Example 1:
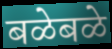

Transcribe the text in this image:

बळेबळे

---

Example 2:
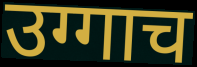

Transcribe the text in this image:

उग्गाच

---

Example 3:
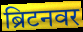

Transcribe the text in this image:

ब्रिटनवर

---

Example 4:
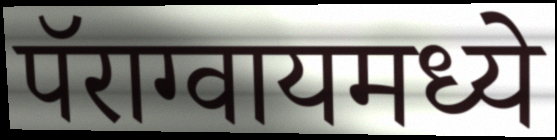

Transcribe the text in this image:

पॅराग्वायमध्ये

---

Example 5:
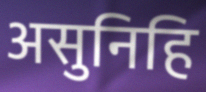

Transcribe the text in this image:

असुनिहि